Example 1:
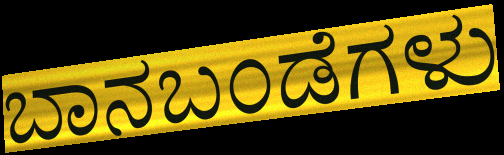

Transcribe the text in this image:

ಬಾನಬಂಡೆಗಳು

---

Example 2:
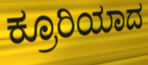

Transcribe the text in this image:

ಕ್ರೂರಿಯಾದ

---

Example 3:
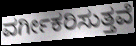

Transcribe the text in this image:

ವರ್ಗೀಕರಿಸುತ್ತವೆ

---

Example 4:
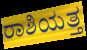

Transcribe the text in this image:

ರಾಶಿಯತ್ತ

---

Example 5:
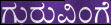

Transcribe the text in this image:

ಗುರುವಿಂಗೆ